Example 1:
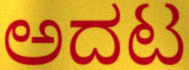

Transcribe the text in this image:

ಅದಟ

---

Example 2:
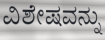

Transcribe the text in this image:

ವಿಶೇಷವನ್ನು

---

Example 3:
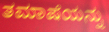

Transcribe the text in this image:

ತಮಾಷೆಯನ್ನು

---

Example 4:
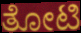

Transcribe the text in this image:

ತೋಟಿ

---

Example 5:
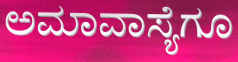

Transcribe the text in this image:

ಅಮಾವಾಸ್ಯೆಗೂ